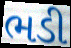
ભડી